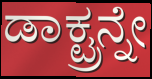
ಡಾಕ್ಟ್ರನ್ನೇ